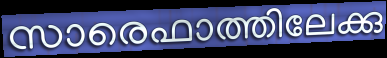
സാരെഫാത്തിലേക്കു